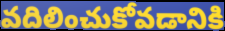
వదిలించుకోవడానికి